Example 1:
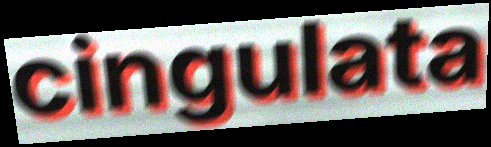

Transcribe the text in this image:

cingulata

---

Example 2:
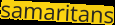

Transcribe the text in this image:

samaritans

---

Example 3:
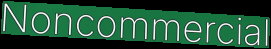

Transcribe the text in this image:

Noncommercial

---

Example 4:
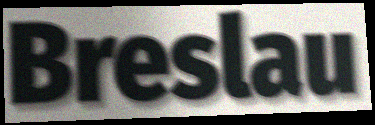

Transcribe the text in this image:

Breslau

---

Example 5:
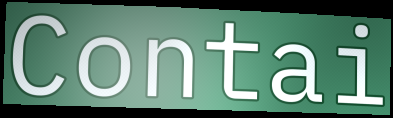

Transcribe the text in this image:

Contai